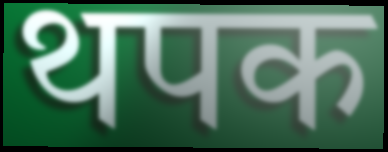
थपक